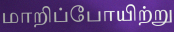
மாறிப்போயிற்று